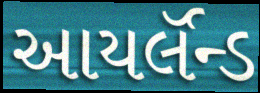
આયર્લૅન્ડ